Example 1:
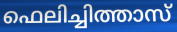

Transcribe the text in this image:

ഫെലിച്ചിത്താസ്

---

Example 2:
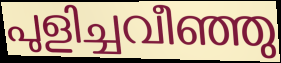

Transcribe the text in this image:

പുളിച്ചവീഞ്ഞു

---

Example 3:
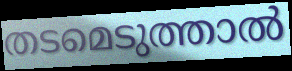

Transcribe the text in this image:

തടമെടുത്താൽ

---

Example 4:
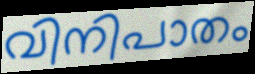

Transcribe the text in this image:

വിനിപാതം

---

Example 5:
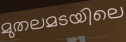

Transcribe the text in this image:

മുതലമടയിലെ